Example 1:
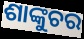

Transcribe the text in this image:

ଶାଙ୍କୁଚର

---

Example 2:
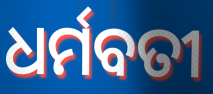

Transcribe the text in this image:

ଧର୍ମବତୀ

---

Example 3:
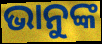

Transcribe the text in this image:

ଭାନୁଙ୍କ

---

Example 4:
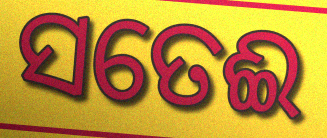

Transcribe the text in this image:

ସତେଈ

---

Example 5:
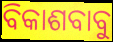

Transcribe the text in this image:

ବିକାଶବାବୁ